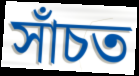
সাঁচত